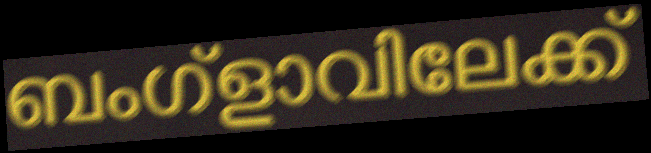
ബംഗ്ളാവിലേക്ക്